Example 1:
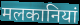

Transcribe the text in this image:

मलकानियां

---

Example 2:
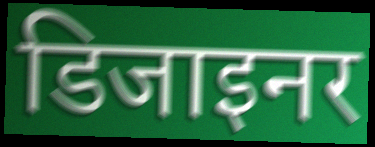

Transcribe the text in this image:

डिजाइनर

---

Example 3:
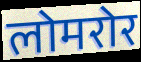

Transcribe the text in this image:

लोमरोर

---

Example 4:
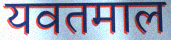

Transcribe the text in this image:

यवतमाल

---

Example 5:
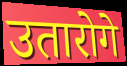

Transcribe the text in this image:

उतारोगे